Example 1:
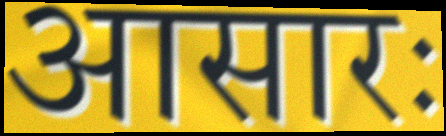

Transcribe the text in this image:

आसारः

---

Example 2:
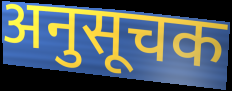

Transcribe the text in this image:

अनुसूचक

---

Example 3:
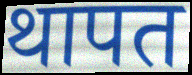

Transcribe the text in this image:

थापत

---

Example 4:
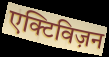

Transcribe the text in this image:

एक्टिविज़न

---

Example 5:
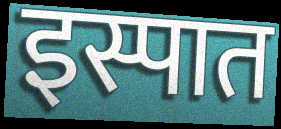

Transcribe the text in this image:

इस्पात